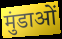
मुंडाओं